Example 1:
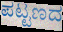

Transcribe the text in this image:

ಪಟ್ಟಣದ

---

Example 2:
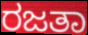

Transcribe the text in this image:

ರಜತಾ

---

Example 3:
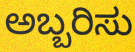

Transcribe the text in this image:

ಅಬ್ಬರಿಸು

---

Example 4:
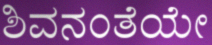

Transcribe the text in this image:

ಶಿವನಂತೆಯೇ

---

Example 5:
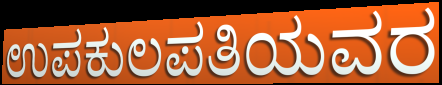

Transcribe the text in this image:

ಉಪಕುಲಪತಿಯವರ